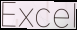
Excel